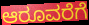
ಆರೂವರೆಗೆ